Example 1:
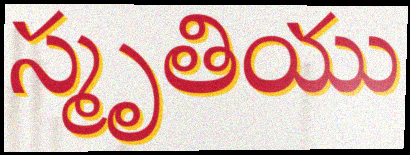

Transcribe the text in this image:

స్మృతియు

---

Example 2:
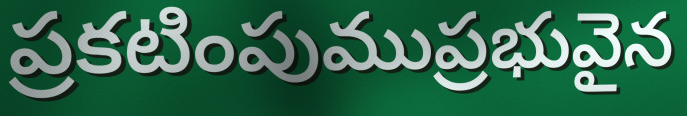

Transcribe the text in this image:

ప్రకటింపుముప్రభువైన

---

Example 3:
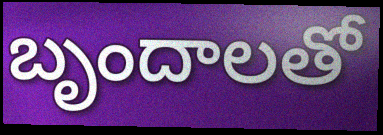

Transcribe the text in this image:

బృందాలతో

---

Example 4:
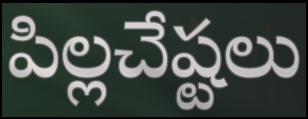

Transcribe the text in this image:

పిల్లచేష్టలు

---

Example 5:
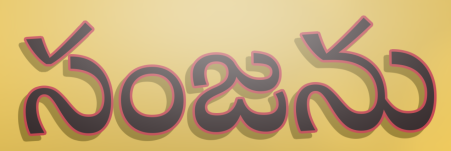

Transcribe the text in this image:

సంజను